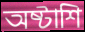
অষ্টাশি